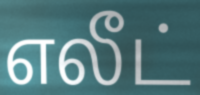
எலீட்